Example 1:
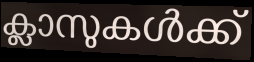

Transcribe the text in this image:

ക്ലാസുകൾക്ക്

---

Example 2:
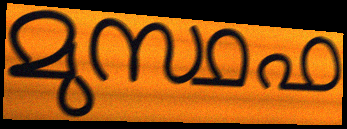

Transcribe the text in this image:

മുസ്ഥഫ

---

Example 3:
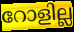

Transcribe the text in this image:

റോളില്ല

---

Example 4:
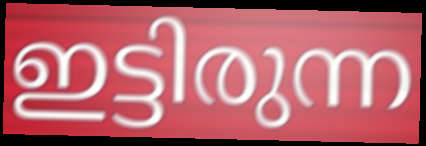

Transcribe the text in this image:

ഇട്ടിരുന്ന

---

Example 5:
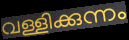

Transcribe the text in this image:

വള്ളിക്കുന്നം